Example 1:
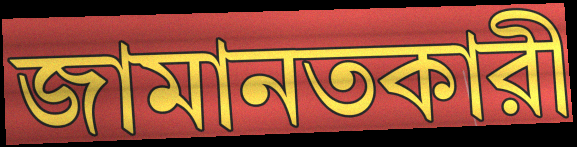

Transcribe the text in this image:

জামানতকারী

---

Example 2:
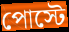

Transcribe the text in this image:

পোস্টে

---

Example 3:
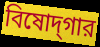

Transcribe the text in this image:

বিষোদ্‌গার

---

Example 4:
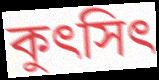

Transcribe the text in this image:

কুৎসিৎ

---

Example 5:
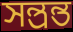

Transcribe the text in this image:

সন্ত্রন্ত